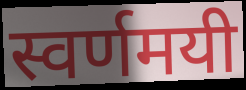
स्वर्णमयी